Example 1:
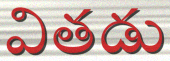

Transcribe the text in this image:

వితడు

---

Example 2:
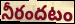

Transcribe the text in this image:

నీరందటం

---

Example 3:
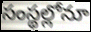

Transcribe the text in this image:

సంస్థల్లోనూ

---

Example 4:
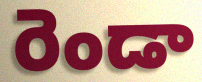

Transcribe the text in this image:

రెండా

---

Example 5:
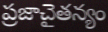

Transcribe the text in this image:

ప్రజాచైతన్యం